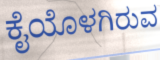
ಕೈಯೊಳಗಿರುವ